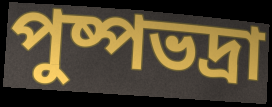
পুষ্পভদ্রা